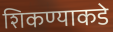
शिकण्याकडे